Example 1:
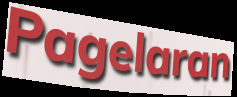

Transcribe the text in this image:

Pagelaran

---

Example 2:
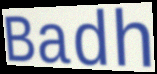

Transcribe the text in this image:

Badh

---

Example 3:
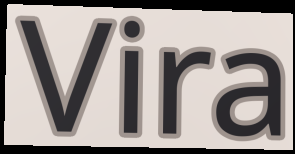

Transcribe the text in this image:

Vira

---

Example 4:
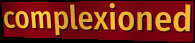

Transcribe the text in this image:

complexioned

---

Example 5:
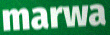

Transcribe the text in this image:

marwa